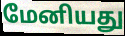
மேனியது